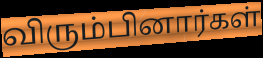
விரும்பினார்கள்